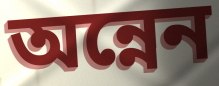
অন্নেন